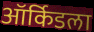
ऑर्किडला